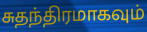
சுதந்திரமாகவும்